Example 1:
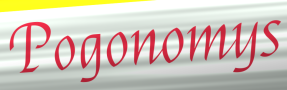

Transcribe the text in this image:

Pogonomys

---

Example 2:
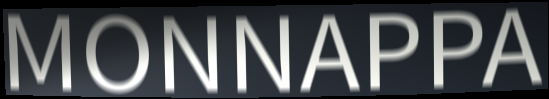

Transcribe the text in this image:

MONNAPPA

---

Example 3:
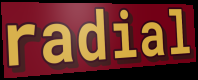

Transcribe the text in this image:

radial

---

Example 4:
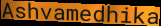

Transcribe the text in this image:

Ashvamedhika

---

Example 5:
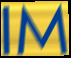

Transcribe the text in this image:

IM